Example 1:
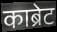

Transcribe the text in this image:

काब्रेट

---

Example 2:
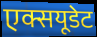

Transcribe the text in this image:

एक्सयूडेट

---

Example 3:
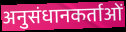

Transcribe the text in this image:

अनुसंधानकर्ताओं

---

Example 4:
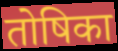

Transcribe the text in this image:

तोषिका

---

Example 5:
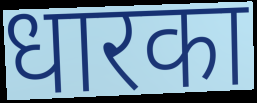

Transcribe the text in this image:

धारका